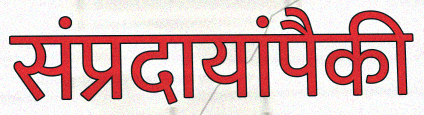
संप्रदायांपैकी